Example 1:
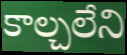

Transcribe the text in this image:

కాల్చలేని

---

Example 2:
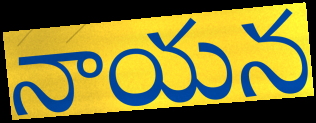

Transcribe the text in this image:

నాయన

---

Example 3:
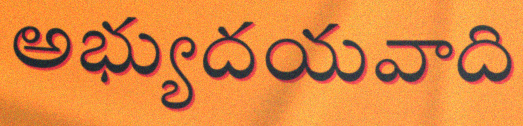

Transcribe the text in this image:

అభ్యుదయవాది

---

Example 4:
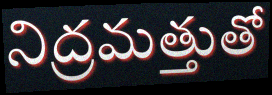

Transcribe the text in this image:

నిద్రమత్తుతో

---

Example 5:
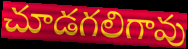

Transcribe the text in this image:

చూడగలిగావు